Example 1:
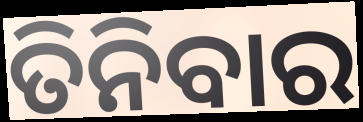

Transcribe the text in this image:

ତିନିବାର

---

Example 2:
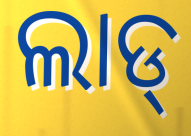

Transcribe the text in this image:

ଲାଡ୍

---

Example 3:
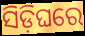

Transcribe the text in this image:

ସିଡ଼ିଘରେ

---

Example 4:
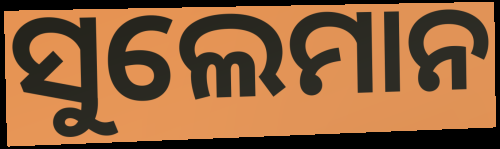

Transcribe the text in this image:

ସୁଲେମାନ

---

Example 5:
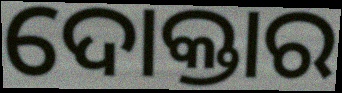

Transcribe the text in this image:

ଦୋକ୍ତାର